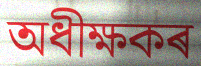
অধীক্ষকৰ